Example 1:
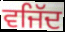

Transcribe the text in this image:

ਵਜਿੱਦ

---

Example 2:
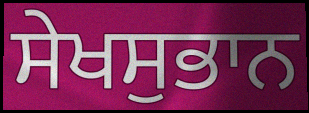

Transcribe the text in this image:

ਸੇਖਸੁਭਾਨ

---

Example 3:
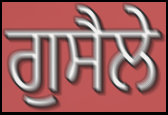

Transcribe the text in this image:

ਗੁਸੈਲੇ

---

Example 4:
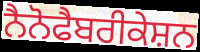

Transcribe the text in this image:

ਨੈਨੋਫੈਬਰੀਕੇਸ਼ਨ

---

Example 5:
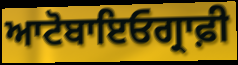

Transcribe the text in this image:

ਆਟੋਬਾਇਓਗ੍ਰਾਫ਼ੀ